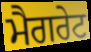
ਮੈਗਰੇਟ